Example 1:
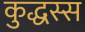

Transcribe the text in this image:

कुद्धस्स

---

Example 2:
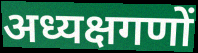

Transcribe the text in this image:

अध्यक्षगणों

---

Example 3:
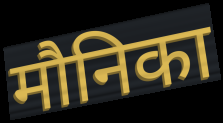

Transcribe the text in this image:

मौनिका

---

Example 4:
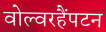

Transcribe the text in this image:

वोल्वरहैंपटन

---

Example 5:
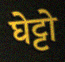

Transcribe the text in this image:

घेट्टो